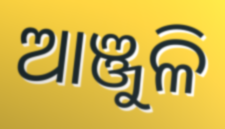
ଆଞ୍ଜୁଳି